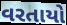
વરતાયો